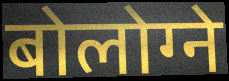
बोलोग्ने